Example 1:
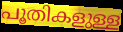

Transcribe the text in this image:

പൂതികളുള്ള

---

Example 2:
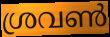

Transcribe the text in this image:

ശ്രവൺ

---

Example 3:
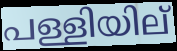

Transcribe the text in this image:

പള്ളിയില്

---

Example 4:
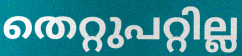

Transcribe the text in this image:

തെറ്റുപറ്റില്ല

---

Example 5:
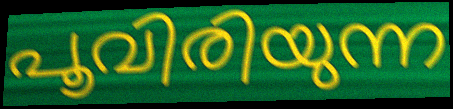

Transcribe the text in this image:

പൂവിരിയുന്ന